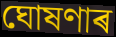
ঘোষণাৰ